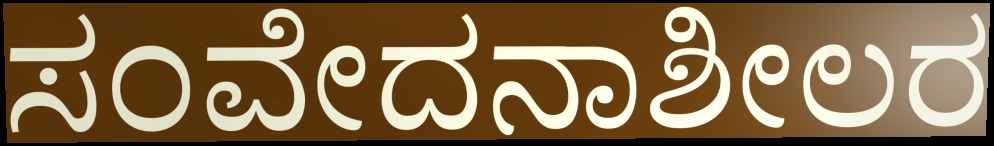
ಸಂವೇದನಾಶೀಲರ